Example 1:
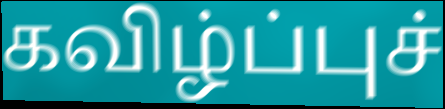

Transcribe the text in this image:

கவிழ்ப்புச்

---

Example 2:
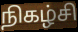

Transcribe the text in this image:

நிகழ்சி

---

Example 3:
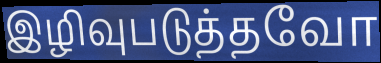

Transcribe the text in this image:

இழிவுபடுத்தவோ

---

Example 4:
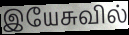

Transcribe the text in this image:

இயேசுவில்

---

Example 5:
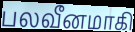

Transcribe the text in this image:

பலவீனமாகி